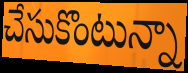
చేసుకొంటున్నా